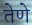
तेणे